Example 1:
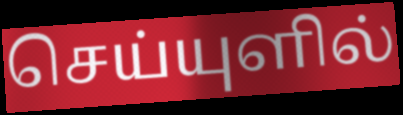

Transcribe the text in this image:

செய்யுளில்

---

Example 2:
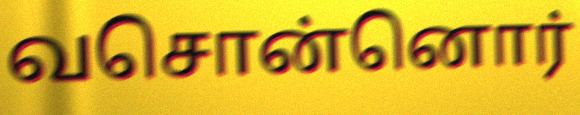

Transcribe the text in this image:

வசொன்னொர்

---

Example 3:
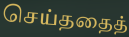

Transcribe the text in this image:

செய்ததைத்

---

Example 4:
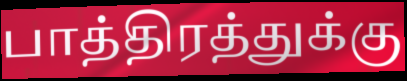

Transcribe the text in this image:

பாத்திரத்துக்கு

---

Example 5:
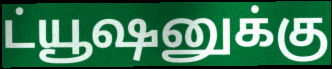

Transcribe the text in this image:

ட்யூஷனுக்கு